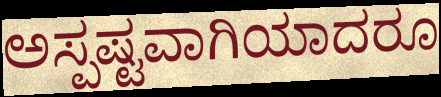
ಅಸ್ಪಷ್ಟವಾಗಿಯಾದರೂ